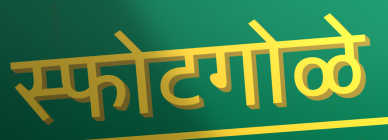
स्फोटगोळे